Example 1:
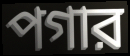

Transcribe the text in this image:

পগার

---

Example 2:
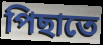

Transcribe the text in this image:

পিছাতে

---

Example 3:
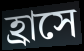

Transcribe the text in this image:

হ্রাসে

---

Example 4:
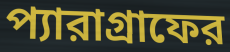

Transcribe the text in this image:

প্যারাগ্রাফের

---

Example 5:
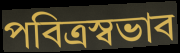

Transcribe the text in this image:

পবিত্রস্বভাব